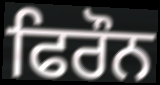
ਫਿਰੌਨ